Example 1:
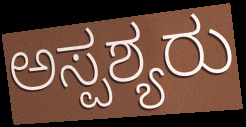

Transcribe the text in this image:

ಅಸ್ಪಶ್ಯರು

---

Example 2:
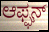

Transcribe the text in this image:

ಆಫ್ಘನ್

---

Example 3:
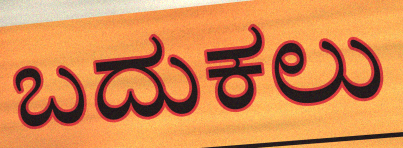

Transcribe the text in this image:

ಬದುಕಲು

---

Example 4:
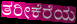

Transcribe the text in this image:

ತರೀಕೆರೆಯ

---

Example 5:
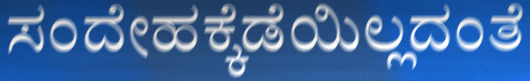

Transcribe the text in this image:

ಸಂದೇಹಕ್ಕೆಡೆಯಿಲ್ಲದಂತೆ